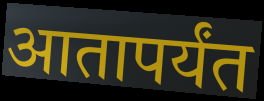
आतापर्यंत